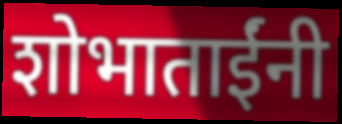
शोभाताईंनी